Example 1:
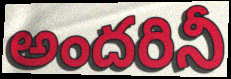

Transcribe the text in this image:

అందరినీ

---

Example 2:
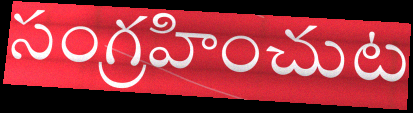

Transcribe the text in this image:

సంగ్రహించుట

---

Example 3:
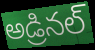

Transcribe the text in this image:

అడ్రినల్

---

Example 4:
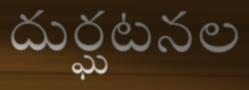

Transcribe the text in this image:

దుర్ఘటనల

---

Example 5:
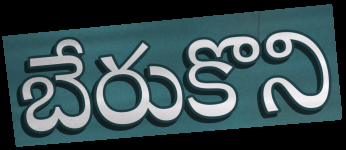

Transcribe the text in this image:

బేరుకొని